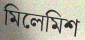
মিলেমিশ